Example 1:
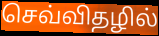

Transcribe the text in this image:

செவ்விதழில்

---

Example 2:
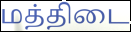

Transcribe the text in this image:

மத்திடை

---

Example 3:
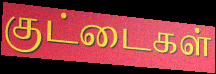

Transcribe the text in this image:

குட்டைகள்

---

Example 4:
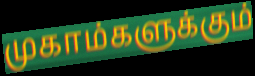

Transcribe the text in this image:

முகாம்களுக்கும்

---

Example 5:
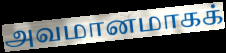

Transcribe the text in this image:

அவமானமாகக்